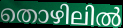
തൊഴിലിൽ